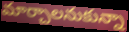
మార్చాలనుకున్నా